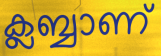
ക്ലബ്ബാണ്